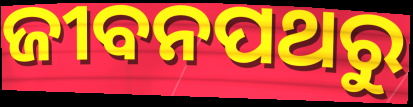
ଜୀବନପଥରୁ